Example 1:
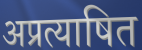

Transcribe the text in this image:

अप्रत्याषित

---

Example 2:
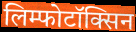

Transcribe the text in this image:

लिम्फोटॉक्सिन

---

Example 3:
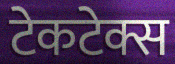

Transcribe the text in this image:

टेकटेक्स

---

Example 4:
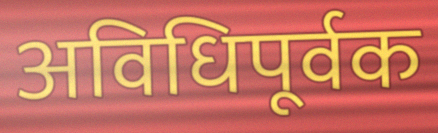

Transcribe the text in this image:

अविधिपूर्वक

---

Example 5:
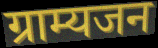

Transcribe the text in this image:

ग्राम्यजन